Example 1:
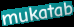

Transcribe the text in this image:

mukatab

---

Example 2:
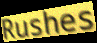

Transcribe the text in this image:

Rushes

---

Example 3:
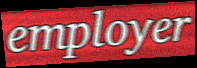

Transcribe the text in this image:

employer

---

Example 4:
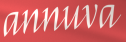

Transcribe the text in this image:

annuva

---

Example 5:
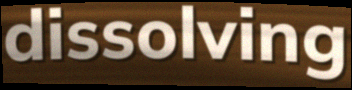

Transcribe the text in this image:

dissolving